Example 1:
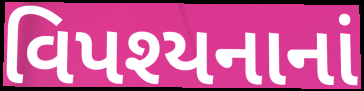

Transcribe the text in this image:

વિપશ્યનાનાં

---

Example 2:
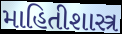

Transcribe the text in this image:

માહિતીશાસ્ત્ર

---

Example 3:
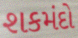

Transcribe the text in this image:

શકમંદો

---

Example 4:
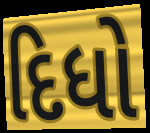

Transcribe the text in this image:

દિધો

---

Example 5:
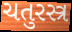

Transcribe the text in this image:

ચતુરસ્ત્ર